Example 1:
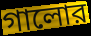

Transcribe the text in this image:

গালোর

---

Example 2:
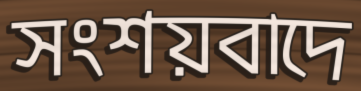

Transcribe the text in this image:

সংশয়বাদে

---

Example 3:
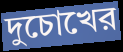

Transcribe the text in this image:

দুচোখের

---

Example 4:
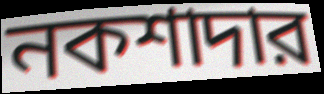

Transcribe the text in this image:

নকশাদার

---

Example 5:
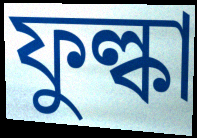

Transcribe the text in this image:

ফুল্কা